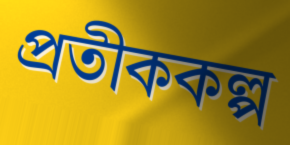
প্রতীককল্প